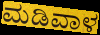
ಮಡಿವಾಳ